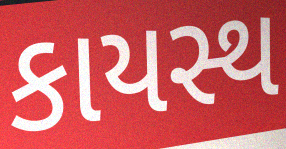
કાયસ્થ